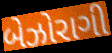
બેઝોરાગી